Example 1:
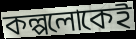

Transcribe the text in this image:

কল্পলোকেই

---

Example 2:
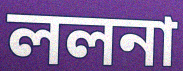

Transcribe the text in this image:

ললনা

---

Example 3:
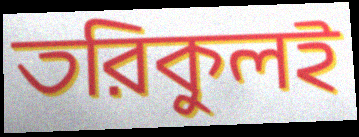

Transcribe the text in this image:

তরিকুলই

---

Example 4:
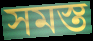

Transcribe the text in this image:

সমস্ত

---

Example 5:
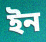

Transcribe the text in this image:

ইন